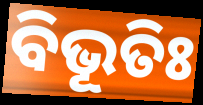
ବିଭୂତିଃ